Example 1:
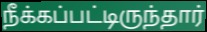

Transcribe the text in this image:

நீக்கப்பட்டிருந்தார்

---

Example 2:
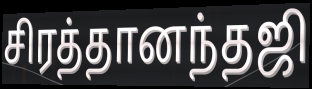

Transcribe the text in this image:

சிரத்தானந்தஜி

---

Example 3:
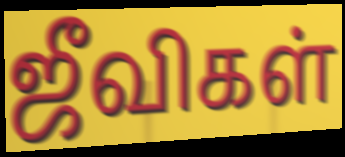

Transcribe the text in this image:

ஜீவிகள்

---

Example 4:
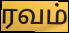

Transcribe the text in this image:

ரவம்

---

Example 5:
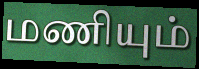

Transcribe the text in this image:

மணியும்